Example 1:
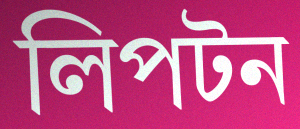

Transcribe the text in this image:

লিপটন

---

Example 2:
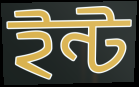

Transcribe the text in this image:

ইন্ট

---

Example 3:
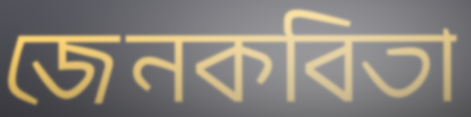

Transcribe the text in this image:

জেনকবিতা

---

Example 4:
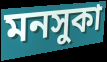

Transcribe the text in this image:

মনসুকা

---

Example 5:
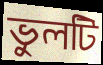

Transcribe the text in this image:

ভুলটি